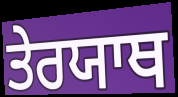
ਤੇਰਯਾਥ